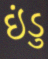
ઇંડુ